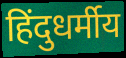
हिंदुधर्मीय